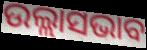
ଉଲ୍ଲାସଭାବ